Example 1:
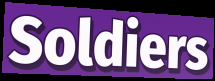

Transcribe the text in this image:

Soldiers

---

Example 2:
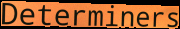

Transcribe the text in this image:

Determiners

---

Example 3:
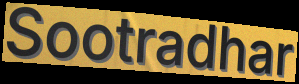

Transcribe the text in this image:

Sootradhar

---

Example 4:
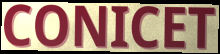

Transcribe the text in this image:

CONICET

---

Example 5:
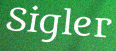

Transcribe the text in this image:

Sigler